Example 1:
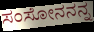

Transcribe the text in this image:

ಸಂಸೋನನನ್ನ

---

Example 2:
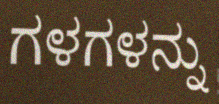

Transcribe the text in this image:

ಗಳಗಳನ್ನು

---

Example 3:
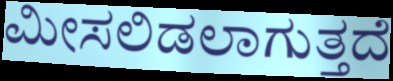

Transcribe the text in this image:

ಮೀಸಲಿಡಲಾಗುತ್ತದೆ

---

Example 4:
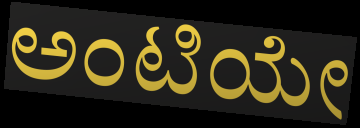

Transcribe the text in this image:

ಅಂಟಿಯೇ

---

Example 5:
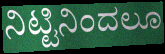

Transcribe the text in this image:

ನಿಟ್ಟಿನಿಂದಲೂ